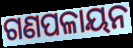
ଗଣପଳାୟନ